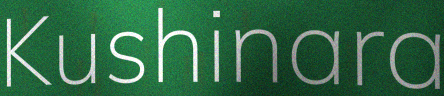
Kushinara